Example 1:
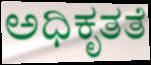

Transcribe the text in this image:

ಅಧಿಕೃತತೆ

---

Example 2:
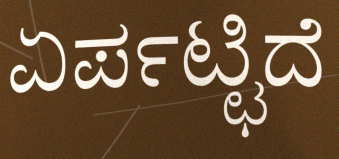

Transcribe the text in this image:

ಏರ್ಪಟ್ಟಿದೆ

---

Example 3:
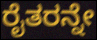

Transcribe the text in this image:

ರೈತರನ್ನೇ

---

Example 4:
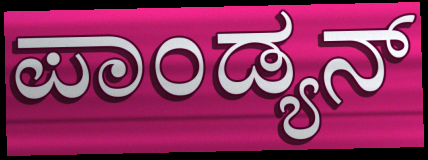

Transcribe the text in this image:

ಪಾಂಡ್ಯನ್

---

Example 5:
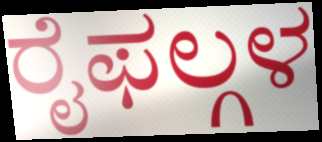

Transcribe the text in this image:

ರೈಫಲ್ಗಳ